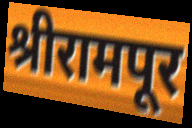
श्रीरामपूर